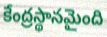
కేంద్రస్థానమైంది